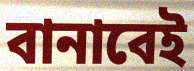
বানাবেই